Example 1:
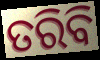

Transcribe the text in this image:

ତରିବି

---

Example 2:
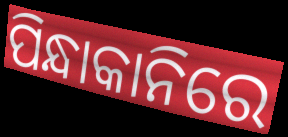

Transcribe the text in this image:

ପିନ୍ଧାକାନିରେ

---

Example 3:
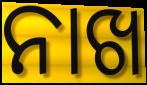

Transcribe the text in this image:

ନାଖ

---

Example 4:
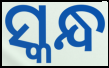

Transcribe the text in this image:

ସ୍କନ୍ଧ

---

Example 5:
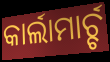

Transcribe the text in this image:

କାର୍ଲାମାର୍ଚ୍ଚ